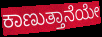
ಕಾಣುತ್ತಾನೆಯೇ